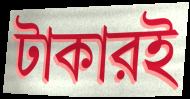
টাকারই